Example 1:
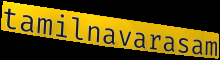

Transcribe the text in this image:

tamilnavarasam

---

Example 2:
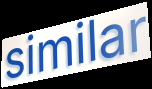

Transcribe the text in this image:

similar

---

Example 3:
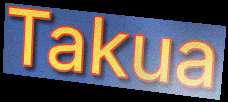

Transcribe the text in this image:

Takua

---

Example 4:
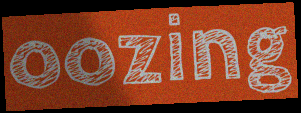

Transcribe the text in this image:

oozing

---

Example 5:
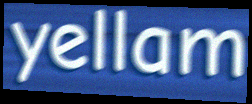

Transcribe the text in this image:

yellam